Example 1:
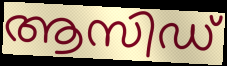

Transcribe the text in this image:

ആസിഡ്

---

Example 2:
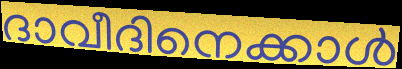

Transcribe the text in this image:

ദാവീദിനെക്കാൾ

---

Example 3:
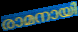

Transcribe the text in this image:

രാമനായി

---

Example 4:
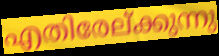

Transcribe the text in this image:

എതിരേല്ക്കുന്നു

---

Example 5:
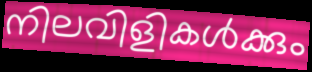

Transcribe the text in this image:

നിലവിളികൾക്കും